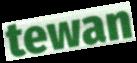
tewan